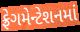
ફ્રેગમેન્ટેશનમાં